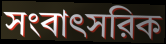
সংবাৎসরিক